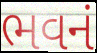
ભવનં